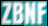
ZBNF